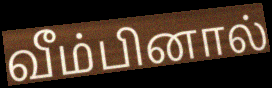
வீம்பினால்